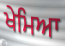
ਖੇਮਿਆ